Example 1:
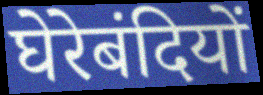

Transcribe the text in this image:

घेरेबंदियों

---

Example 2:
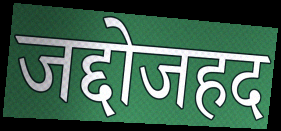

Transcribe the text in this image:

जद्दोजहद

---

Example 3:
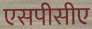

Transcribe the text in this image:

एसपीसीए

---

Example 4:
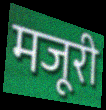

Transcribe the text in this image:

मजूरी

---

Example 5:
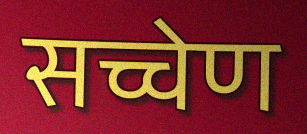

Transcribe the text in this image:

सच्चेण